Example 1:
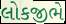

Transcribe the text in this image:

લોકજીભે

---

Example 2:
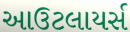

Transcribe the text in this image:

આઉટલાયર્સ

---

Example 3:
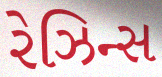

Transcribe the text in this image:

રેઝિન્સ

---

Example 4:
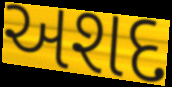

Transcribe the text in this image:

અશદ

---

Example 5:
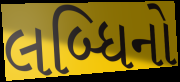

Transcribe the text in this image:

લબ્ધિનો